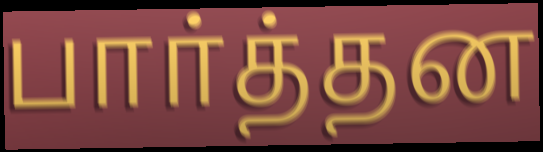
பார்த்தன